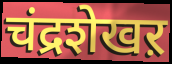
चंद्रशेखऱ